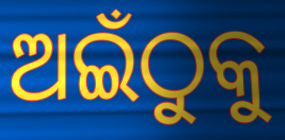
ଅଇଁଠୁକୁ